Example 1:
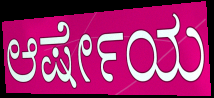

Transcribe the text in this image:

ಆರ್ಷೇಯ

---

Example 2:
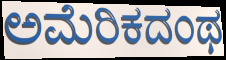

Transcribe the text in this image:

ಅಮೆರಿಕದಂಥ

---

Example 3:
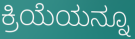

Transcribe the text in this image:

ಕ್ರಿಯೆಯನ್ನೂ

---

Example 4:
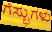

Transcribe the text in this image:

ಗೆಸ್ಟುಗಳು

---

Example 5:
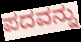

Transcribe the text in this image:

ಪದವನ್ನು